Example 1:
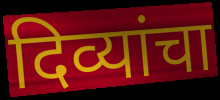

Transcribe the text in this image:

दिव्यांचा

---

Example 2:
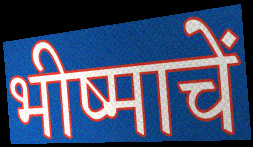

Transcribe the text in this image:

भीष्माचें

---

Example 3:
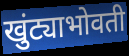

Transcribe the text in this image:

खुंट्याभोवती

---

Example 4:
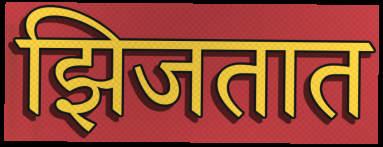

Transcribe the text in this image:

झिजतात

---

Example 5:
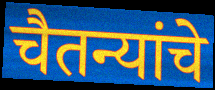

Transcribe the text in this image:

चैतन्यांचे